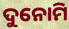
ଦୁନୋମି